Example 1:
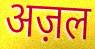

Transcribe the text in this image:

अज़ल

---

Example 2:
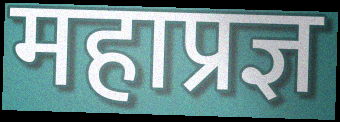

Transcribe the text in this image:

महाप्रज्ञ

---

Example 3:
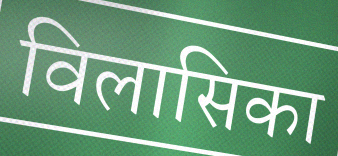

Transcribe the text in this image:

विलासिका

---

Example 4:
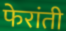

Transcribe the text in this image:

फेरांती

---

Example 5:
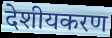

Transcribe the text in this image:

देशीयकरण